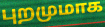
புறமுமாக